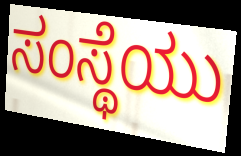
ಸಂಸ್ಥೆಯು